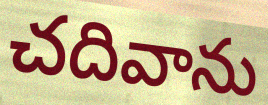
చదివాను